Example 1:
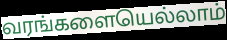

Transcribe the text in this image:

வரங்களையெல்லாம்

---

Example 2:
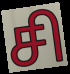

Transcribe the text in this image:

சி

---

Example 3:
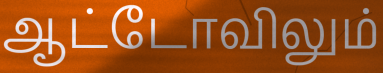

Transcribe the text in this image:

ஆட்டோவிலும்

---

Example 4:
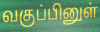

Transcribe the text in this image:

வகுப்பினுள்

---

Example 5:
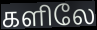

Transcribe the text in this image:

களிலே